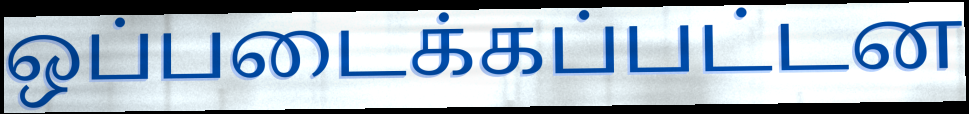
ஒப்படைக்கப்பட்டன